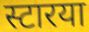
स्टारया